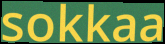
sokkaa